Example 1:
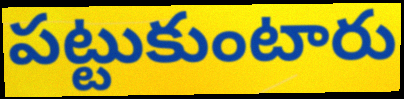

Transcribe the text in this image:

పట్టుకుంటారు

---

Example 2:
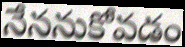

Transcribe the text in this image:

నేననుకోవడం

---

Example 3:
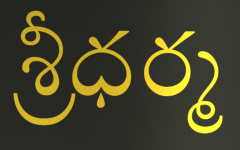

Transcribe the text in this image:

శ్రీధర్మ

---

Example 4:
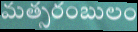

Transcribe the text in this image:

మత్సరంబులం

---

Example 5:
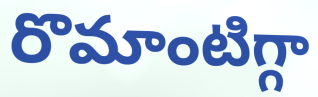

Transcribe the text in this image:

రొమాంటిగ్గా